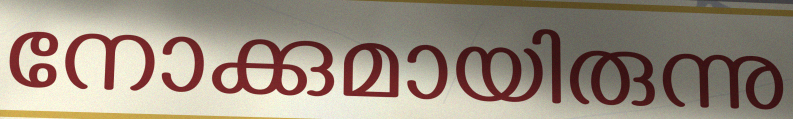
നോക്കുമായിരുന്നു